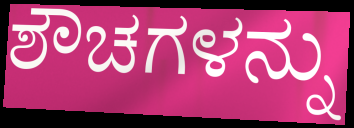
ಶೌಚಗಳನ್ನು